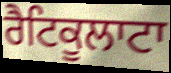
ਰੈਟਿਕੂਲਾਟਾ